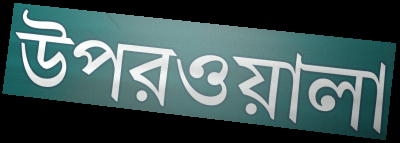
উপরওয়ালা